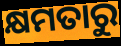
କ୍ଷମତାରୁ